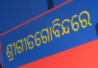
ଶ୍ରୀଗୀତଗୋବିନ୍ଦରେ